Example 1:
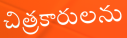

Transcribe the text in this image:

చిత్రకారులను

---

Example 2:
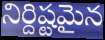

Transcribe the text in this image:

నిర్దిష్టమైన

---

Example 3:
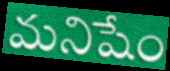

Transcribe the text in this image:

మనిషేం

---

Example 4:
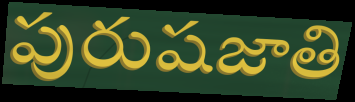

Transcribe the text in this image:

పురుషజాతి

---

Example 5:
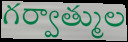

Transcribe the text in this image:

గర్వాత్ముల